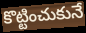
కొట్టించుకునే